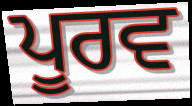
ਪੂਰਵ